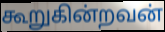
கூறுகின்றவன்